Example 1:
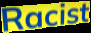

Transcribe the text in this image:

Racist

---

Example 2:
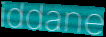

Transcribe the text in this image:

iddane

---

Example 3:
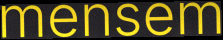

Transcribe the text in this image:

mensem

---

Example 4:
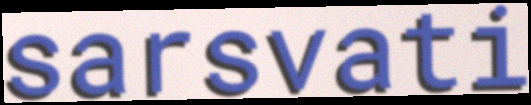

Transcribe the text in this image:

sarsvati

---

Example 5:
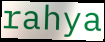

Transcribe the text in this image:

rahya